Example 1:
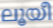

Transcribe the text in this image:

ലൂയീ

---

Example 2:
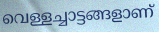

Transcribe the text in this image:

വെള്ളച്ചാട്ടങ്ങളാണ്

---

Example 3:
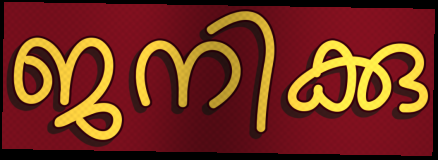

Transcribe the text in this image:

ജനിക്കു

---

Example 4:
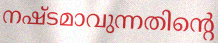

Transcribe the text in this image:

നഷ്ടമാവുന്നതിന്റെ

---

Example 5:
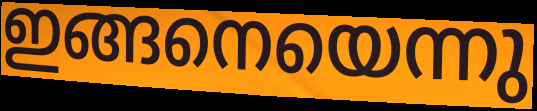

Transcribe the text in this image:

ഇങ്ങനെയെന്നു